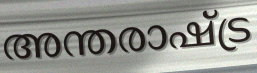
അന്തരാഷ്ട്ര